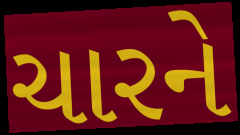
ચારને